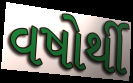
વષોર્થી